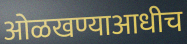
ओळखण्याआधीच